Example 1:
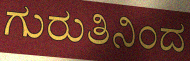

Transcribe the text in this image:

ಗುರುತಿನಿಂದ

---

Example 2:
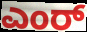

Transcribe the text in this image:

ಎಂರ್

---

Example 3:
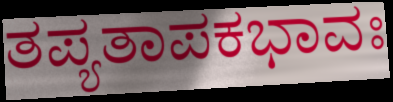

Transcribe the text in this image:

ತಪ್ಯತಾಪಕಭಾವಃ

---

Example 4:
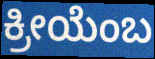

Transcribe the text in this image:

ಕ್ರೀಯೆಂಬ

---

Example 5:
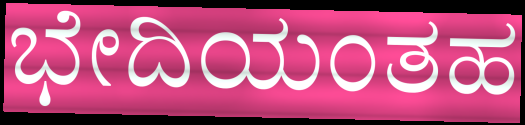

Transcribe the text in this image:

ಭೇದಿಯಂತಹ